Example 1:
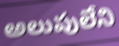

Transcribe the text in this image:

అలుపులేని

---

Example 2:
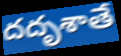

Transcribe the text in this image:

దదృశాతే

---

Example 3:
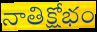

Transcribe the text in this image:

నాతిక్షోభం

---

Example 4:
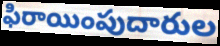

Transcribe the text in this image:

ఫిరాయింపుదారుల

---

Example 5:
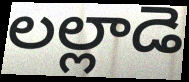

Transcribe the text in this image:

లల్లాడె